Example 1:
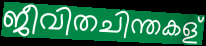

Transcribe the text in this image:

ജീവിതചിന്തകള്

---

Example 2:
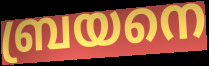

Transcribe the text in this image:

ബ്രയനെ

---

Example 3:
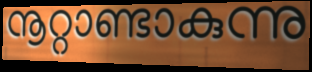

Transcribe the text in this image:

നൂറ്റാണ്ടാകുന്നു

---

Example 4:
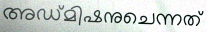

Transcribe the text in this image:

അഡ്മിഷനുചെന്നത്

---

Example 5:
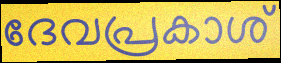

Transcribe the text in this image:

ദേവപ്രകാശ്